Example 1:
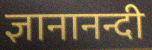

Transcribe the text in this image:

ज्ञानानन्दी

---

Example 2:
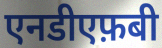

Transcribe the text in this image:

एनडीएफ़बी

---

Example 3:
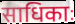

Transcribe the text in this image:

साधिकाः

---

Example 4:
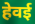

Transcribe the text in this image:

हेवई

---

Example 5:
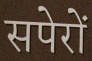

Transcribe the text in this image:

सपेरों